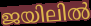
ജയിലിൽ